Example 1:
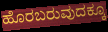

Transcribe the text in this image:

ಹೊರಬರುವುದಕ್ಕೂ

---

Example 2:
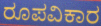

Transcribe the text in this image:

ರೂಪವಿಕಾರ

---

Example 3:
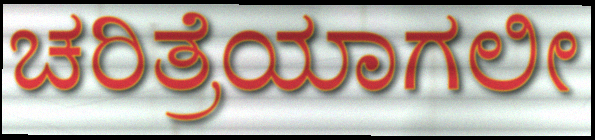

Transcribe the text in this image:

ಚರಿತ್ರೆಯಾಗಲೀ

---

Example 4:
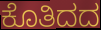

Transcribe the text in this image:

ಕೊತಿದದ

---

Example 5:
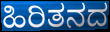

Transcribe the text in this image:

ಹಿರಿತನದ